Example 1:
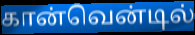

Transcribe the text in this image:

கான்வென்டில்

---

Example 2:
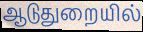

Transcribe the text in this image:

ஆடுதுறையில்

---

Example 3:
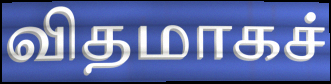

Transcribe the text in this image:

விதமாகச்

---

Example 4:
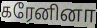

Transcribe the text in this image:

கரேனினா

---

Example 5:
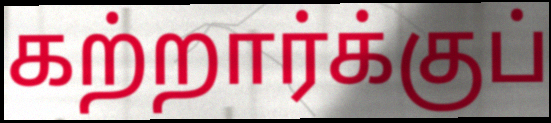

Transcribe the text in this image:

கற்றார்க்குப்